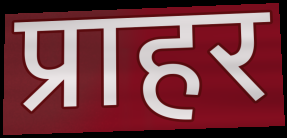
प्राहर